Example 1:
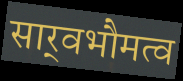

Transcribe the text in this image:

सार्वभौमत्व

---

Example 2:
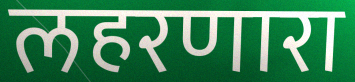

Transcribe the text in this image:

लहरणारा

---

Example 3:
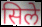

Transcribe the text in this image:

सिले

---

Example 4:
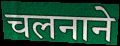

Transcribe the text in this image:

चलनाने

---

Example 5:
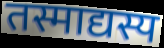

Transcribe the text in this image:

तस्माद्यस्य